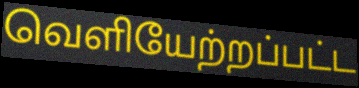
வெளியேற்றப்பட்ட